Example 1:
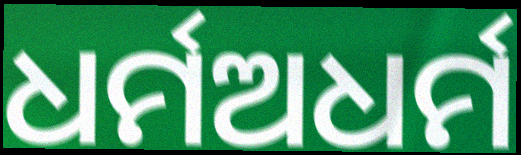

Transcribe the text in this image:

ଧର୍ମଅଧର୍ମ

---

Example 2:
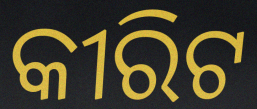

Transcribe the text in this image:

କୀରିଟ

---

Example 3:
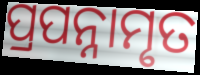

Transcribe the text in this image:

ପ୍ରପନ୍ନାମୃତ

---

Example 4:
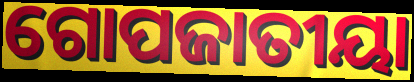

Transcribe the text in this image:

ଗୋପଜାତୀୟା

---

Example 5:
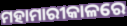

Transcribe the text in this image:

ମହାମାରୀକାଳରେ